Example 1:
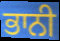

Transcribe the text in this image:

ਭਾਨੀ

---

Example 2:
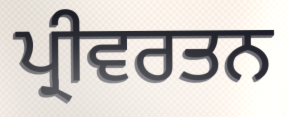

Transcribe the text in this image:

ਪ੍ਰੀਵਰਤਨ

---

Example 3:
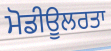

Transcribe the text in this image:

ਮੋਡੀਊਲਰਤਾ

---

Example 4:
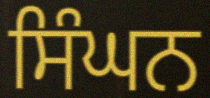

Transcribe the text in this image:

ਸਿੰਘਨ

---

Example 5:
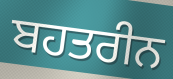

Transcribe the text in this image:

ਬਹਤਰੀਨ